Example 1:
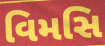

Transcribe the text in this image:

વિમસિ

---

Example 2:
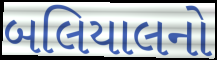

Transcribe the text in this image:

બલિયાલનો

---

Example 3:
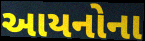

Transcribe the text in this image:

આયનોના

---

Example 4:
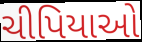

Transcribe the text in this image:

ચીપિયાઓ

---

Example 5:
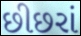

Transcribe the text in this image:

છીછરાં